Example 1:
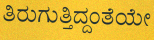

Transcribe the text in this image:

ತಿರುಗುತ್ತಿದ್ದಂತೆಯೇ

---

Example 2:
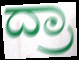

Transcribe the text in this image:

ದ್ರಾ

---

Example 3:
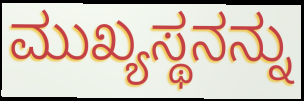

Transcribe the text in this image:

ಮುಖ್ಯಸ್ಥನನ್ನು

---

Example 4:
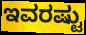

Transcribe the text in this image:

ಇವರಷ್ಟು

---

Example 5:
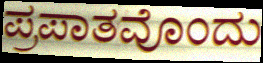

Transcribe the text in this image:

ಪ್ರಪಾತವೊಂದು